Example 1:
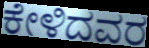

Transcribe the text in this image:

ಕೇಳಿದವರ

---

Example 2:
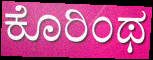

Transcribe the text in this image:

ಕೊರಿಂಥ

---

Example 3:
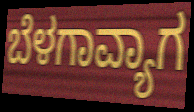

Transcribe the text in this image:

ಬೆಳಗಾವ್ಯಾಗ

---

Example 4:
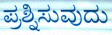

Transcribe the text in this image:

ಪ್ರಶ್ನಿಸುವುದು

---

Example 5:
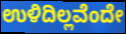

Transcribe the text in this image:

ಉಳಿದಿಲ್ಲವೆಂದೇ